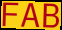
FAB